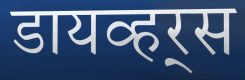
डायव्हर्स